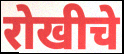
रोखीचे